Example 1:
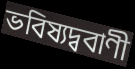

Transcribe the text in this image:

ভবিষ্যদ্ববাণী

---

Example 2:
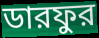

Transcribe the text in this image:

ডারফুর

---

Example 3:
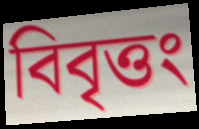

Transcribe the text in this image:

বিবৃত্তং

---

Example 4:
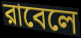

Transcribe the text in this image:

রাবেলে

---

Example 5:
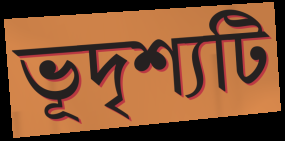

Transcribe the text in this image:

ভূদৃশ্যটি